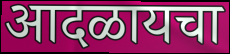
आदळायचा